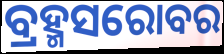
ବ୍ରହ୍ମସରୋବର